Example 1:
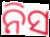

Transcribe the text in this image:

ନିସ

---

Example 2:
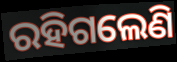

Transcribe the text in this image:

ରହିଗଲେଣି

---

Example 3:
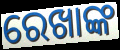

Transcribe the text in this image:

ରେଖାଙ୍କ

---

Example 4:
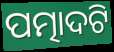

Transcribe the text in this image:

ପତ୍ମାଦଟି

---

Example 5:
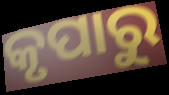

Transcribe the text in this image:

କୃପାରୁ